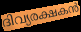
ദിവ്യരക്ഷകൻ